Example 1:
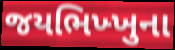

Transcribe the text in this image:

જયભિખ્ખુના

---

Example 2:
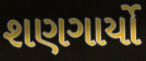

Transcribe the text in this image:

શણગાર્યો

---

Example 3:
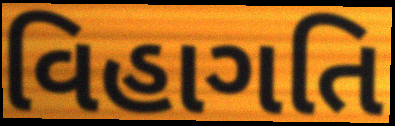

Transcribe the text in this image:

વિહાગતિ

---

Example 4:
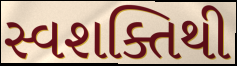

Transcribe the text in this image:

સ્વશક્તિથી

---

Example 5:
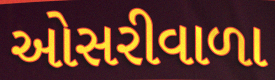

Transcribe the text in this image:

ઓસરીવાળા